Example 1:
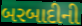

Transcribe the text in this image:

બરબાદીની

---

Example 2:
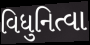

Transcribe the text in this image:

વિધુનિત્વા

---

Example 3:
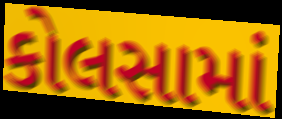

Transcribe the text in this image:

કોલસામાં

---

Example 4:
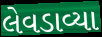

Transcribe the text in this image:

લેવડાવ્યા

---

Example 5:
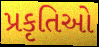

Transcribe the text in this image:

પ્રકૃતિઓ